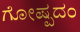
ಗೋಷ್ಪದಂ